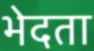
भेदता